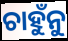
ଚାହୁଁନୁ